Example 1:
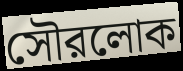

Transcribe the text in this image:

সৌরলোক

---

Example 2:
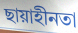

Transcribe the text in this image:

ছায়াহীনতা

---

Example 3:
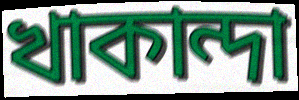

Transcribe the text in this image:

খাকান্দা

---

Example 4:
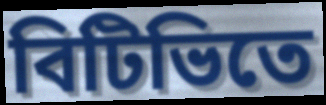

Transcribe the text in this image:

বিটিভিতে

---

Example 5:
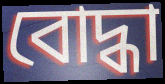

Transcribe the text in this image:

বোদ্ধা